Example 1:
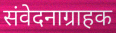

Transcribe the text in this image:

संवेदनाग्राहक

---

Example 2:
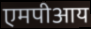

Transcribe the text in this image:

एमपीआय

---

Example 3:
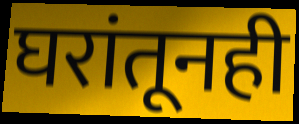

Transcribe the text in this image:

घरांतूनही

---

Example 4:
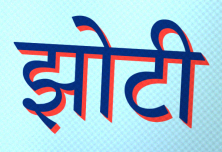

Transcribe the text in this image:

झोटी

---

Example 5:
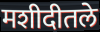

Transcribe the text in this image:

मशीदीतले